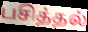
பசித்தல்